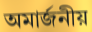
অমার্জনীয়